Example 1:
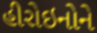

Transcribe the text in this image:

હીરોઇનોને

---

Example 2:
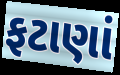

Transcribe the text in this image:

ફટાણાં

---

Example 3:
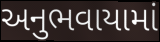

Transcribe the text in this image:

અનુભવાયામાં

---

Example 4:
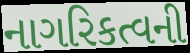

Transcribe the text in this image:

નાગરિકત્વની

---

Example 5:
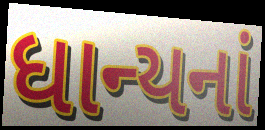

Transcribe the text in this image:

ધાન્યનાં